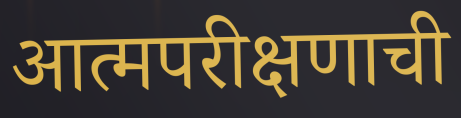
आत्मपरीक्षणाची